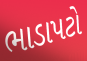
ભાડાપટો